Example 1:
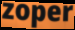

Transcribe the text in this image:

zoper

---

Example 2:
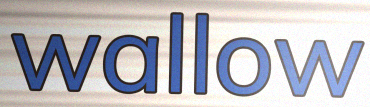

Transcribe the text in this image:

wallow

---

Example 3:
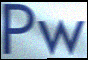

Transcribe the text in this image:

Pw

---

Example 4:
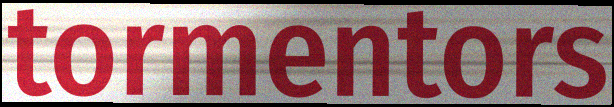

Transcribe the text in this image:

tormentors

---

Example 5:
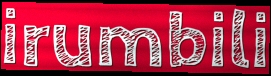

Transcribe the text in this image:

irumbili